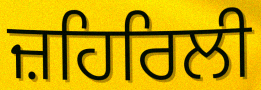
ਜ਼ਹਿਰਿਲੀ